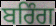
ਬਰਿੰਗ